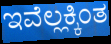
ಇವೆಲ್ಲಕ್ಕಿಂತ